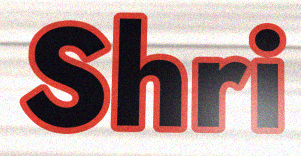
Shri